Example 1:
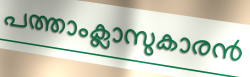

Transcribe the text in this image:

പത്താംക്ലാസുകാരൻ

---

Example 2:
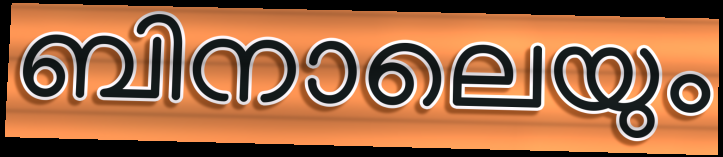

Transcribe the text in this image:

ബിനാലെയും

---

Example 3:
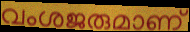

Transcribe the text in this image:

വംശജരുമാണ്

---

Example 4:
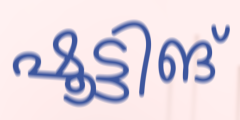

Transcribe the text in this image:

ഷൂട്ടിങ്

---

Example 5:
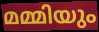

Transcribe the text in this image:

മമ്മിയും